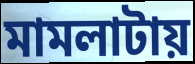
মামলাটায়